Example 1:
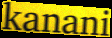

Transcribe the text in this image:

kanani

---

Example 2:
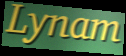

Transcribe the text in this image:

Lynam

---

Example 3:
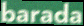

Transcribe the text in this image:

barada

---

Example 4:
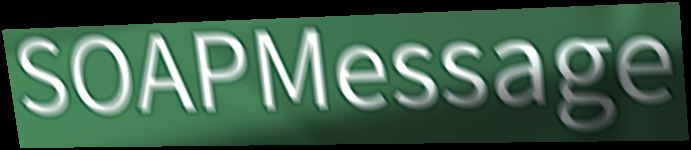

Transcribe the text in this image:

SOAPMessage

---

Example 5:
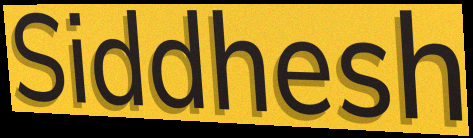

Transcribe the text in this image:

Siddhesh